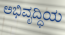
ಅಭಿವೃದ್ಧಿಯ